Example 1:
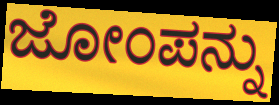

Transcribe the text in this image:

ಜೋಂಪನ್ನು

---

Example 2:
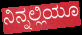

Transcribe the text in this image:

ನಿನ್ನಲ್ಲಿಯೂ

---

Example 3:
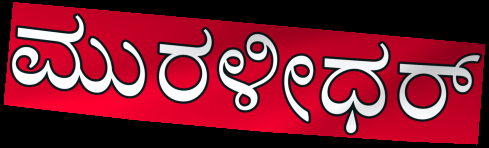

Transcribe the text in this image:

ಮುರಳೀಧರ್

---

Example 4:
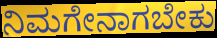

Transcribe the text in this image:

ನಿಮಗೇನಾಗಬೇಕು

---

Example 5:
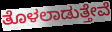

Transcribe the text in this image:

ತೊಳಲಾಡುತ್ತೇವೆ